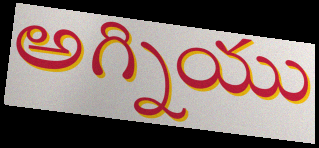
అగ్నియు